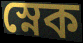
স্নেক